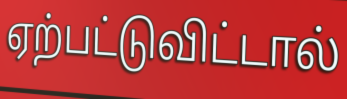
ஏற்பட்டுவிட்டால்